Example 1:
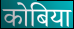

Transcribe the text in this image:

कोबिया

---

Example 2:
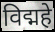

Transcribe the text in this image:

विद्महे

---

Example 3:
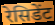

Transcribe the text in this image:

रेसिडेंट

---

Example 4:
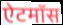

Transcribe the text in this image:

ऐटमॉस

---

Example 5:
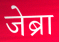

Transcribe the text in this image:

जेब्रा